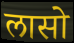
लासो